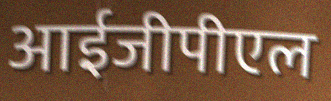
आईजीपीएल